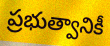
ప్రభుత్వానికీ